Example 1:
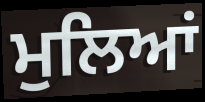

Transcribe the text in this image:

ਮੁਲਿਆਂ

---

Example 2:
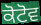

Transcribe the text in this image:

ਕੋਟੋਵ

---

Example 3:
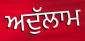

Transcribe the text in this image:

ਅਦੁੱਲਾਮ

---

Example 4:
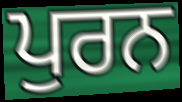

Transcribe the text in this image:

ਪੁਰਨ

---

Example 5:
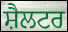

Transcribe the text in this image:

ਸ਼ੈਲਟਰ